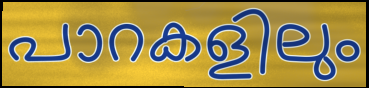
പാറകളിലും